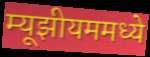
म्यूझीयममध्ये